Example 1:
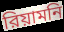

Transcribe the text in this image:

রিয়ামনি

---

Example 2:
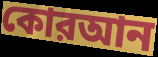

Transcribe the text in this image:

কোরআন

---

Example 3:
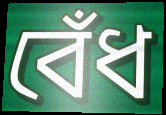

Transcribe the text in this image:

বেঁধ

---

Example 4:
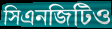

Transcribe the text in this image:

সিএনজিটিও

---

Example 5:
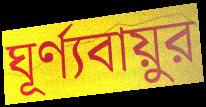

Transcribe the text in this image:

ঘূর্ণ্যবায়ুর